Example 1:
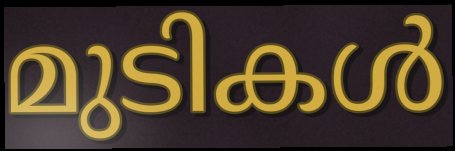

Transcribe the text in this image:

മുടികൾ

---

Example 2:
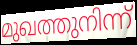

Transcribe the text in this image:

മുഖത്തുനിന്ന്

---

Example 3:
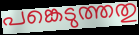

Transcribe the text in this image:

പങ്കെടുത്തതു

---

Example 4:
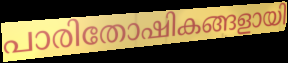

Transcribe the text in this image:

പാരിതോഷികങ്ങളായി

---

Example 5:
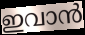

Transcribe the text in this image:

ഇവാൻ